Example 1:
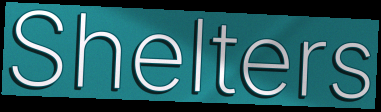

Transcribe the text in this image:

Shelters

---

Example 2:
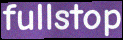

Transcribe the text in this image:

fullstop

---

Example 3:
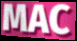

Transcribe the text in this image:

MAC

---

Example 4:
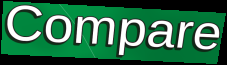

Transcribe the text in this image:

Compare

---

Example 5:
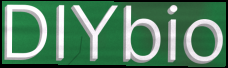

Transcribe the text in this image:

DIYbio